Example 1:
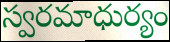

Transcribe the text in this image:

స్వరమాధుర్యం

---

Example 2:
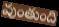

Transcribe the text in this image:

వుంతుంది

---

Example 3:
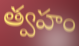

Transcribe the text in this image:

త్వహం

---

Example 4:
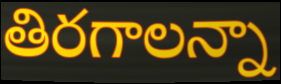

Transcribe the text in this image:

తిరగాలన్నా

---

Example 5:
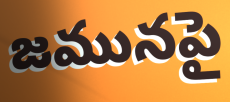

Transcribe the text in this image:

జమునపై